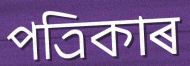
পত্ৰিকাৰ